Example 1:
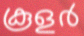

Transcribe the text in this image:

കൂളർ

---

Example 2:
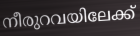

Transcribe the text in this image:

നീരുറവയിലേക്ക്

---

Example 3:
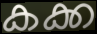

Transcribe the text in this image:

കക്ക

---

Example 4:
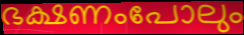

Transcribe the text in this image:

ഭക്ഷണംപോലും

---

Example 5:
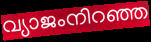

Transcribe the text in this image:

വ്യാജംനിറഞ്ഞ